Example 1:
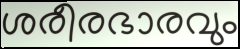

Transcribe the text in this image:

ശരീരഭാരവും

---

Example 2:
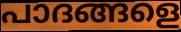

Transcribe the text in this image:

പാദങ്ങളെ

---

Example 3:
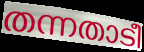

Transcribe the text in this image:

തന്നതാടീ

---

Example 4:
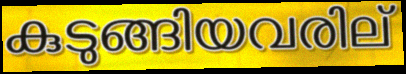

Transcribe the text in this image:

കുടുങ്ങിയവരില്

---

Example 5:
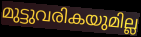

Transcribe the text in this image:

മുട്ടുവരികയുമില്ല